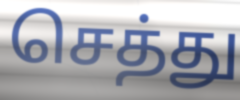
செத்து